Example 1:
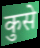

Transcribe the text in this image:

कुसे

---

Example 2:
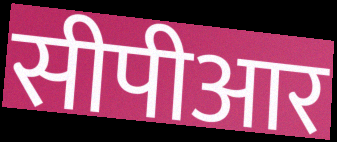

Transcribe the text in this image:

सीपीआर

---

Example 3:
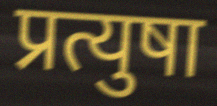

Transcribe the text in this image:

प्रत्युषा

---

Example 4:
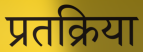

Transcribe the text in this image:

प्रतक्रिया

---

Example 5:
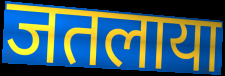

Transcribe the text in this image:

जतलाया